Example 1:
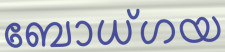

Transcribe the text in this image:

ബോധ്ഗയ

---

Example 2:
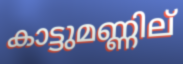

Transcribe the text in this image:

കാട്ടുമണ്ണില്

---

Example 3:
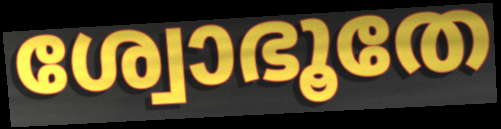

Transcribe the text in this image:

ശ്വോഭൂതേ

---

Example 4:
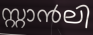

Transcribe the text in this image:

സ്റ്റാൻലി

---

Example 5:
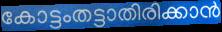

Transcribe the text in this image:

കോട്ടംതട്ടാതിരിക്കാൻ